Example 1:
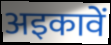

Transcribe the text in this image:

अइकावें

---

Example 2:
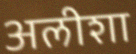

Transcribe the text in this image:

अलीशा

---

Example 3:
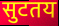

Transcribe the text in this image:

सुटतय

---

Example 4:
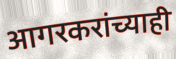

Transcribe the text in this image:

आगरकरांच्याही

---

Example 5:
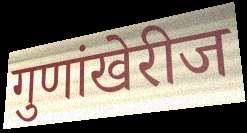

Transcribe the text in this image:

गुणांखेरीज